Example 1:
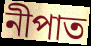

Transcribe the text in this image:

নীপাত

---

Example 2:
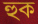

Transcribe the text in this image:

হুক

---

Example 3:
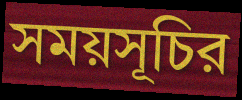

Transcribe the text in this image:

সময়সূচির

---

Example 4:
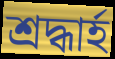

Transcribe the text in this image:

শ্রদ্ধার্হ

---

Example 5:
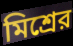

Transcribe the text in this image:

মিশ্রের